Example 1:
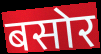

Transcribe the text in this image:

बसोर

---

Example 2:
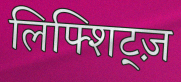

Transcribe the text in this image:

लिफ्शिट्ज़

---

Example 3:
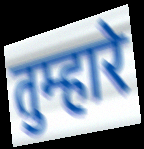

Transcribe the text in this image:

तुम्हारे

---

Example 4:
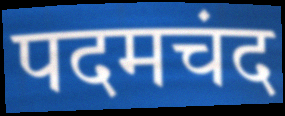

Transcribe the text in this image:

पदमचंद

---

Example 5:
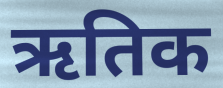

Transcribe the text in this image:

ऋतिक